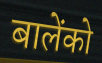
बालेंको